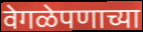
वेगळेपणाच्या